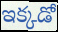
ఇక్కడో